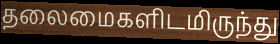
தலைமைகளிடமிருந்து